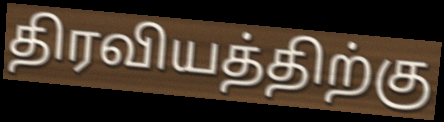
திரவியத்திற்கு